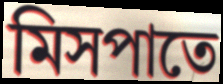
মিসপাতে